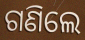
ଗଣିଲେ